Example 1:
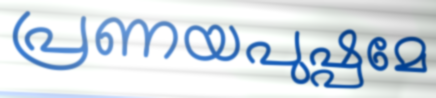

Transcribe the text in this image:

പ്രണയപുഷ്പമേ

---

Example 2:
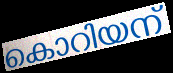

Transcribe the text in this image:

കൊറിയന്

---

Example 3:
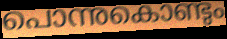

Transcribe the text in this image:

പൊന്നുകൊണ്ടും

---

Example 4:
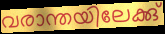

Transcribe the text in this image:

വരാന്തയിലേക്കു്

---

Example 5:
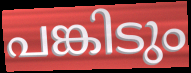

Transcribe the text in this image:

പങ്കിടും